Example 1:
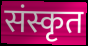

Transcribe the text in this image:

संस्कृत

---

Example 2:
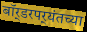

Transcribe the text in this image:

बॉर्डरपर्यंतच्या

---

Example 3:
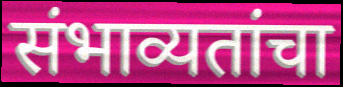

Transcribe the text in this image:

संभाव्यतांचा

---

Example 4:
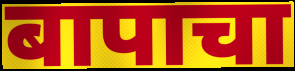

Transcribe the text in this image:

बापाचा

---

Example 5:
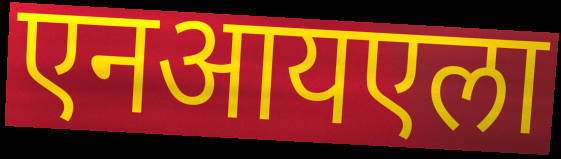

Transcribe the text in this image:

एनआयएला